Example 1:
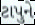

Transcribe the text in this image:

ટાપુને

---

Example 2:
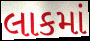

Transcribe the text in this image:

લાકમાં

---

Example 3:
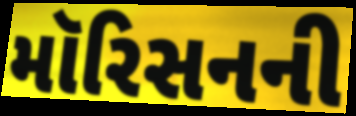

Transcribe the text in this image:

મૉરિસનની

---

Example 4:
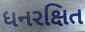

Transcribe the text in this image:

ધનરક્ષિત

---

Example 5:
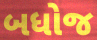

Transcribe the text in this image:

બધોજ